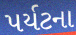
પર્યટના